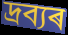
দ্ৰব্যৰ